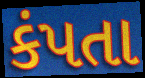
કંપતા